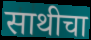
साथीचा